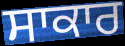
ਸਾਕਾਰ